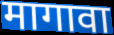
मागावा